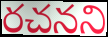
రచనని